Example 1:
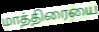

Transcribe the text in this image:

மாத்திரையை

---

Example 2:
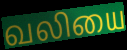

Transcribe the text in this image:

வலியை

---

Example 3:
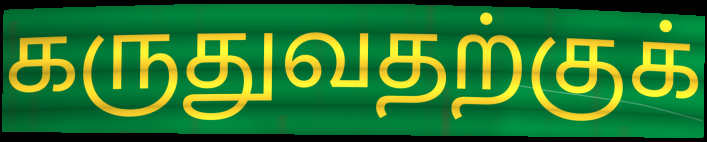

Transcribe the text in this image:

கருதுவதற்குக்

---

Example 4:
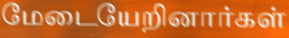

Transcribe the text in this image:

மேடையேறினார்கள்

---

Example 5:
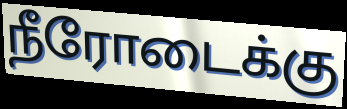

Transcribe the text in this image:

நீரோடைக்கு